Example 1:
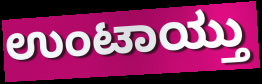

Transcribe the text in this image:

ಉಂಟಾಯ್ತು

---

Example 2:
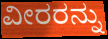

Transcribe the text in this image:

ವೀರರನ್ನು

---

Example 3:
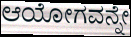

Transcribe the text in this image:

ಆಯೋಗವನ್ನೇ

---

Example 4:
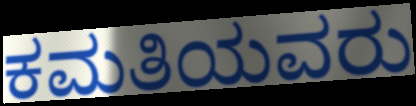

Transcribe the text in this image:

ಕಮತಿಯವರು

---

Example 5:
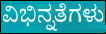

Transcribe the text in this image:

ವಿಭಿನ್ನತೆಗಳು